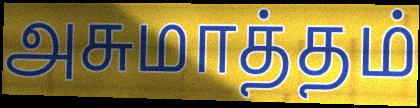
அசுமாத்தம்